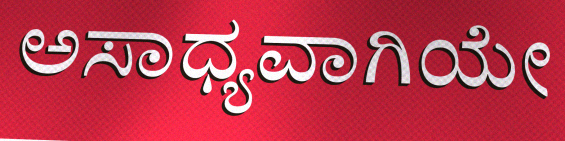
ಅಸಾಧ್ಯವಾಗಿಯೇ